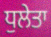
ਧੁਲੇਤਾ